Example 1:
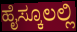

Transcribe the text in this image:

ಹೈಸ್ಕೂಲಲ್ಲಿ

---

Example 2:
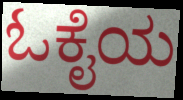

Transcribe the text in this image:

ಓಕೈಯ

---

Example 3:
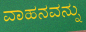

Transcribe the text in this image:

ವಾಹನವನ್ನು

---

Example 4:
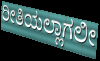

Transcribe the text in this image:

ರೀತಿಯಲ್ಲಾಗಲೀ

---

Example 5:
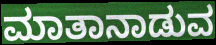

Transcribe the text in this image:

ಮಾತಾನಾಡುವ